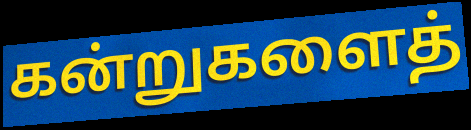
கன்றுகளைத்